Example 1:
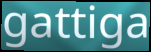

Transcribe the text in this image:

gattiga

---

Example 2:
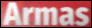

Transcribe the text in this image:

Armas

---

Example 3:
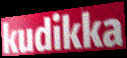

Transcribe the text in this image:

kudikka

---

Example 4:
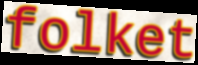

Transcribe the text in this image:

folket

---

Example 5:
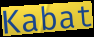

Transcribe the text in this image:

Kabat